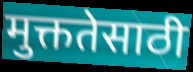
मुक्ततेसाठी